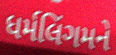
ધર્મલિંગમને